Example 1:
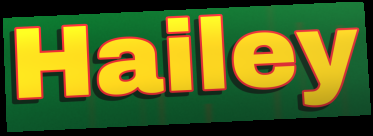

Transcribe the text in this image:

Hailey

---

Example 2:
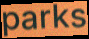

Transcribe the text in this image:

parks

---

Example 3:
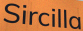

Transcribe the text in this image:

Sircilla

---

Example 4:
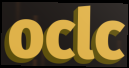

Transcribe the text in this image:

oclc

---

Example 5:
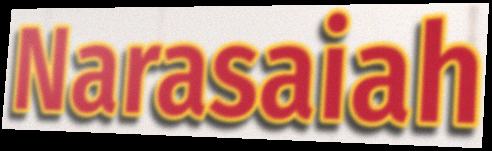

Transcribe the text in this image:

Narasaiah